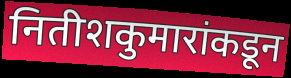
नितीशकुमारांकडून